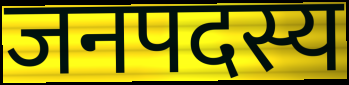
जनपदस्य